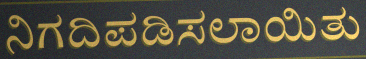
ನಿಗದಿಪಡಿಸಲಾಯಿತು